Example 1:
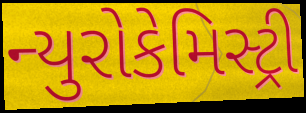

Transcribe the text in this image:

ન્યુરોકેમિસ્ટ્રી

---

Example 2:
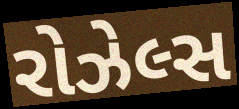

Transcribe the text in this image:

રોઝેલ્સ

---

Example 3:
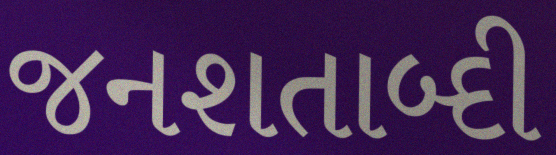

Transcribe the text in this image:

જનશતાબ્દી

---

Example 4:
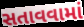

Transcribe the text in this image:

સતાવવામાં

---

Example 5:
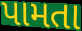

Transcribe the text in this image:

પામતા